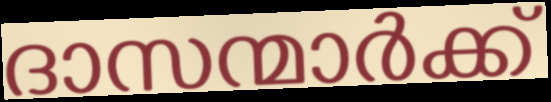
ദാസന്മാർക്ക്